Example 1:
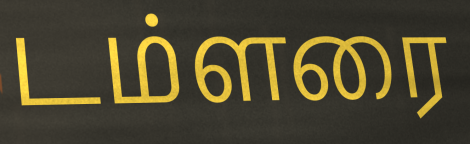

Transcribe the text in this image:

டம்ளரை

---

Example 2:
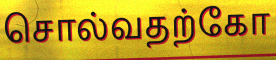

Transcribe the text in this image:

சொல்வதற்கோ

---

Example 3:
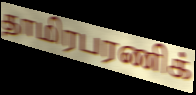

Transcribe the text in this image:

தாமிரபரணிக்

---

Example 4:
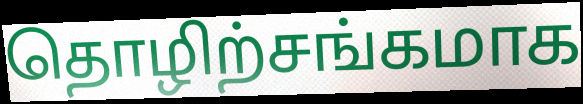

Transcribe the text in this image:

தொழிற்சங்கமாக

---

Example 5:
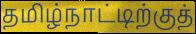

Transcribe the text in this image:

தமிழ்நாட்டிற்குத்